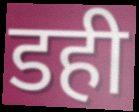
डही